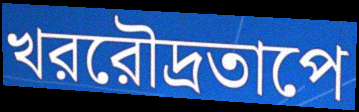
খররৌদ্রতাপে